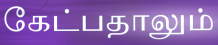
கேட்பதாலும்